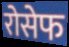
रोसेफ